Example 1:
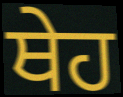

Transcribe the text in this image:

ਥੇਹ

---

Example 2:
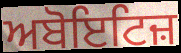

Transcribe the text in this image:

ਅਬੋਇਟਿਜ਼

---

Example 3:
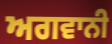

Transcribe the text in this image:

ਅਗਵਾਨੀ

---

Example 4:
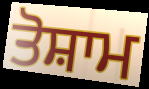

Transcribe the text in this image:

ਤੋਸ਼ਾਮ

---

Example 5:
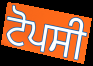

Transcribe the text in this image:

ਟੋਪਸੀ